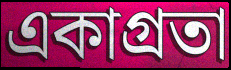
একাগ্ৰতা